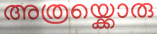
അത്രയ്ക്കൊരു